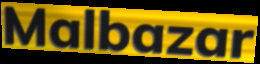
Malbazar